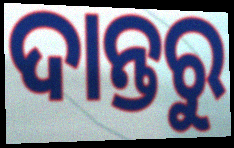
ଦାନ୍ତରୁ